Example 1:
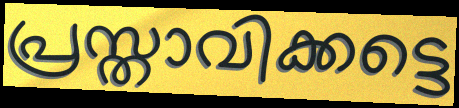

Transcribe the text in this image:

പ്രസ്താവിക്കട്ടെ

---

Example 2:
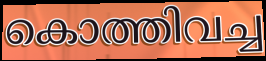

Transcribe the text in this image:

കൊത്തിവച്ച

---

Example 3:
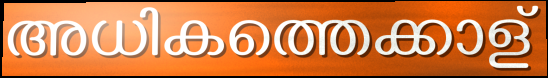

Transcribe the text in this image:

അധികത്തെക്കാള്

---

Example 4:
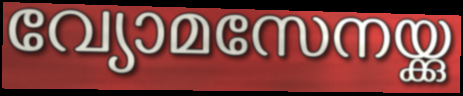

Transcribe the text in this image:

വ്യോമസേനയ്ക്കു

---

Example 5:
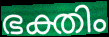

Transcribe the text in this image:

ഭക്തിം